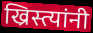
ख्रिस्त्यांनी